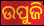
ଉପୁଜି